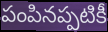
పంపినప్పటికీ